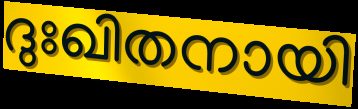
ദുഃഖിതനായി